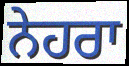
ਨੇਹਰਾ